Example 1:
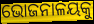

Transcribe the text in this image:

ଭୋଜନାଳୟକୁ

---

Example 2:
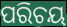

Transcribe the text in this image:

ପରିଚୟ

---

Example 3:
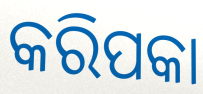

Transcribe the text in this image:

କରିପକା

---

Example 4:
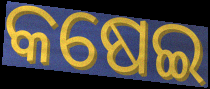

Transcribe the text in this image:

କଷେଇ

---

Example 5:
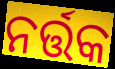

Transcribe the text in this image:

ନର୍ତ୍ତକ